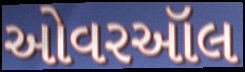
ઓવરઑલ